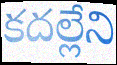
కదల్లేని